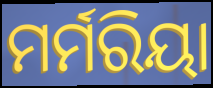
ମର୍ମରିୟା